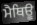
ਮੈਥਿਊ